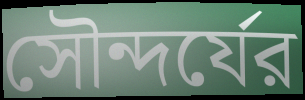
সৌন্দর্যের